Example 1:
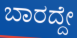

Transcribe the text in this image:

ಬಾರದ್ದೇ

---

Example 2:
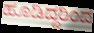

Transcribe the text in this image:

ಹೂಡಿದ್ದರಿಂದ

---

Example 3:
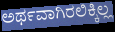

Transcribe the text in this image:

ಅರ್ಥವಾಗಿರಲಿಕ್ಕಿಲ್ಲ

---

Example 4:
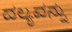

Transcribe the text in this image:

ದಲ್ಯವನ್ನು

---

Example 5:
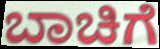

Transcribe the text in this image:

ಬಾಚಿಗೆ